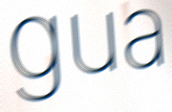
gua